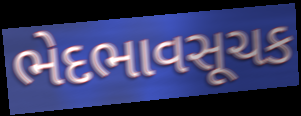
ભેદભાવસૂચક